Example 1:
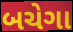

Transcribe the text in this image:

બચેગા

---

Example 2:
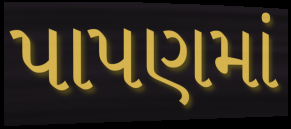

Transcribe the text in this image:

પાપણમાં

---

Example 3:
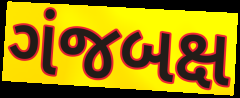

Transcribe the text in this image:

ગંજબક્ષ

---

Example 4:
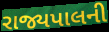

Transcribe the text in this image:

રાજ્યપાલની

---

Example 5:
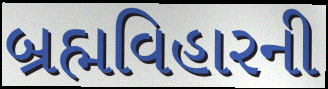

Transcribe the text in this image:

બ્રહ્મવિહારની